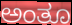
ಅಂತೂ